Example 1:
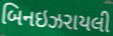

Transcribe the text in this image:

બિનઇઝરાયલી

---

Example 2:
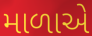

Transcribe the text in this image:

માળાએ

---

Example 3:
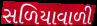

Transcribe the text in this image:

સળિયાવાળી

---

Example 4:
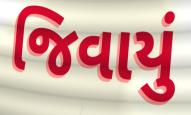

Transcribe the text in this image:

જિવાયું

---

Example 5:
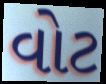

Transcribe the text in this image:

વોટ